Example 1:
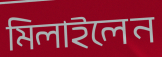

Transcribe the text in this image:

মিলাইলেন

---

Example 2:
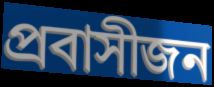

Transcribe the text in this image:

প্রবাসীজন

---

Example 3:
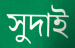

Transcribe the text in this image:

সুদাই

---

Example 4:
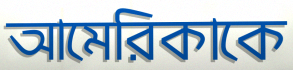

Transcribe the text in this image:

আমেরিকাকে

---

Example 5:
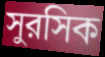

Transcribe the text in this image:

সুরসিক